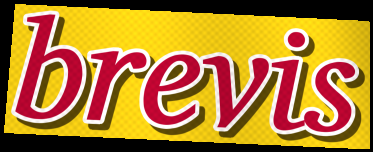
brevis